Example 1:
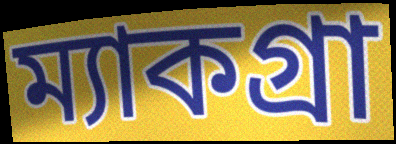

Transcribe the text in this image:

ম্যাকগ্রা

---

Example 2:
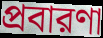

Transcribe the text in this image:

প্রবারণা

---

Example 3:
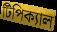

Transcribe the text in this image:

টিপিক্যাল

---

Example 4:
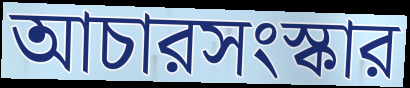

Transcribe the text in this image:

আচারসংস্কার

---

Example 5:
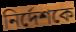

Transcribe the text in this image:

নির্দেশকে